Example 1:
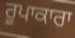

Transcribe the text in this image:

ਰੂਪਾਕਾਰਾ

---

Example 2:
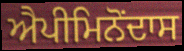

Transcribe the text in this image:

ਐਪੀਮਿਨੋਂਦਾਸ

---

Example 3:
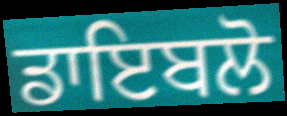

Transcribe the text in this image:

ਡਾਇਬਲੋ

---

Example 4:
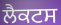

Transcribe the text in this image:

ਲੈਕਟਸ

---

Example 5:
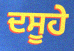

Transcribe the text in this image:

ਦਸੂਹੇ